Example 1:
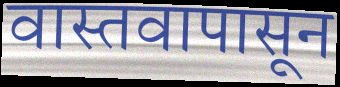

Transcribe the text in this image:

वास्तवापासून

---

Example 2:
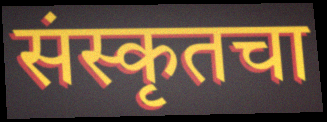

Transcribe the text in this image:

संस्कृतचा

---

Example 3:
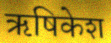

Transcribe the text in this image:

ऋषिकेश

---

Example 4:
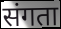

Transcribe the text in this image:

संगता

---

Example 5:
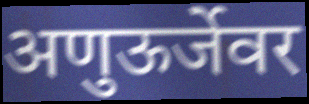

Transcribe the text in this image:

अणुऊर्जेवर